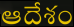
ఆదేశం